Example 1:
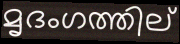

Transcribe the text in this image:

മൃദംഗത്തില്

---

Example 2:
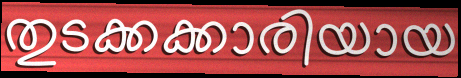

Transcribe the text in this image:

തുടക്കക്കാരിയായ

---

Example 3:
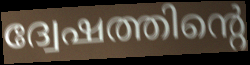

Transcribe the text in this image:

ദ്വേഷത്തിന്റെ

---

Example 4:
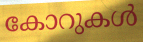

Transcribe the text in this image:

കോറുകൾ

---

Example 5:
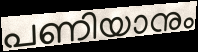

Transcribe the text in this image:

പണിയാനും